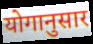
योगानुसार